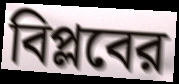
বিপ্লবের